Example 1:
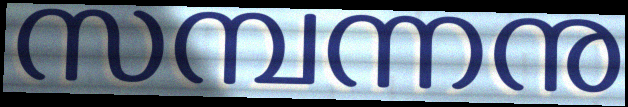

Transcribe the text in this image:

സമ്പന്നനു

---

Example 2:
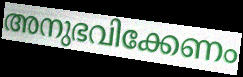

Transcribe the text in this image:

അനുഭവിക്കേണം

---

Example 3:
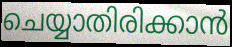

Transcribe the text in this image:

ചെയ്യാതിരിക്കാൻ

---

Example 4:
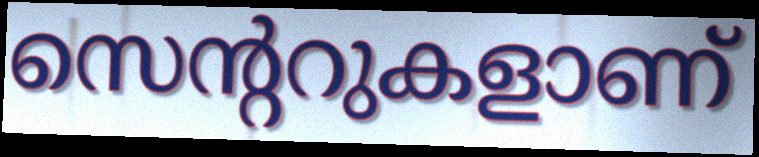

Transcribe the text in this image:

സെന്ററുകളാണ്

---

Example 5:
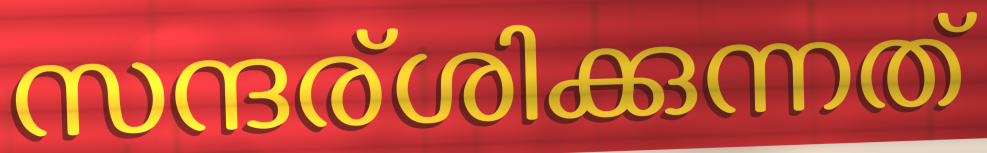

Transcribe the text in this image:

സന്ദര്ശിക്കുന്നത്